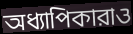
অধ্যাপিকারাও